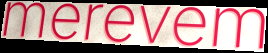
merevem